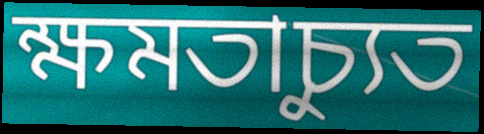
ক্ষমতাচ্যুত